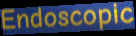
Endoscopic